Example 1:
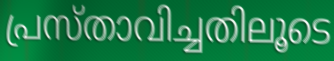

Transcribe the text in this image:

പ്രസ്താവിച്ചതിലൂടെ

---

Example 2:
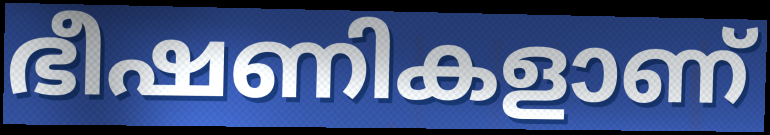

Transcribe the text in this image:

ഭീഷണികളാണ്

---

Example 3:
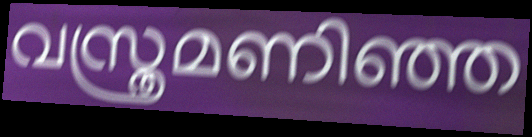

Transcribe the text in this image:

വസ്ത്രമണിഞ്ഞ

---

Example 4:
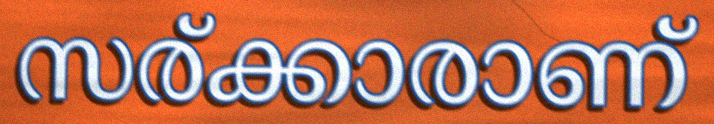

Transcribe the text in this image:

സര്ക്കാരാണ്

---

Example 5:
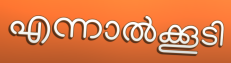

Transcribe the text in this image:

എന്നാൽക്കൂടി